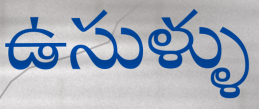
ఉసుళ్ళు